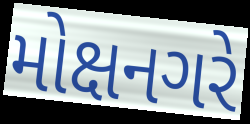
મોક્ષનગરે